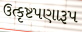
ઉત્કૃષ્ટપણારૂપ